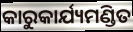
କାରୁକାର୍ଯ୍ୟମଣ୍ଡିତ